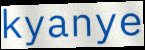
kyanye